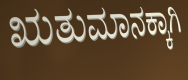
ಋತುಮಾನಕ್ಕಾಗಿ